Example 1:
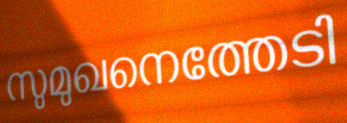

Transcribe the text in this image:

സുമുഖനെത്തേടി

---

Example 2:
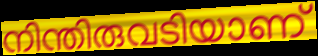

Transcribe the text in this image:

നിന്തിരുവടിയാണ്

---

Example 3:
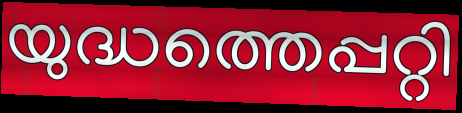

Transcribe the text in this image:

യുദ്ധത്തെപ്പറ്റി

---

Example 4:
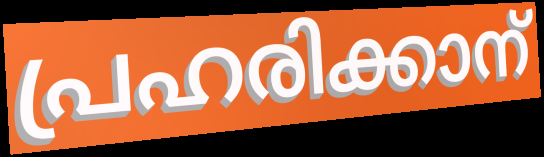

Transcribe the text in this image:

പ്രഹരിക്കാന്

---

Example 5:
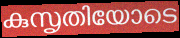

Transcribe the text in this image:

കുസൃതിയോടെ